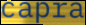
capra